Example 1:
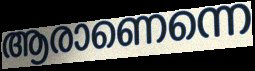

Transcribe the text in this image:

ആരാണെന്നെ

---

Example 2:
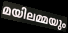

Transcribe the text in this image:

മയിലമ്മയും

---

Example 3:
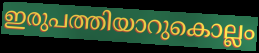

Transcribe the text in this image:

ഇരുപത്തിയാറുകൊല്ലം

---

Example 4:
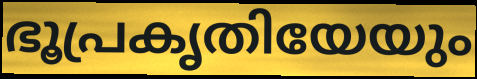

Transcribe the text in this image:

ഭൂപ്രകൃതിയേയും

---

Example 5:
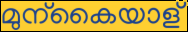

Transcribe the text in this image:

മുന്കൈയാള്